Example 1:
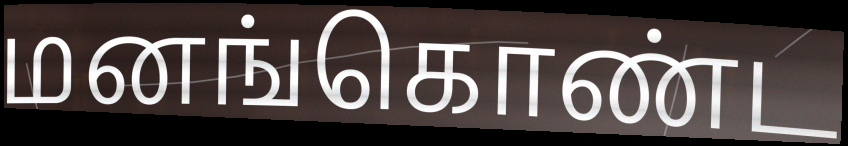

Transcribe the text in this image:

மனங்கொண்ட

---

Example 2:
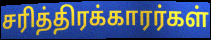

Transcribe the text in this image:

சரித்திரக்காரர்கள்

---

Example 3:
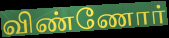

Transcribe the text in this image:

விண்ணோர்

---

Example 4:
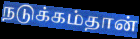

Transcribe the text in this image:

நடுக்கம்தான்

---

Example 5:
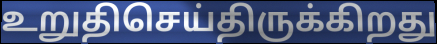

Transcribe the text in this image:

உறுதிசெய்திருக்கிறது